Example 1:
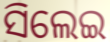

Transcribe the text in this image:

ସିଲେଇ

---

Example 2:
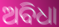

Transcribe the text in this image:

ଅବିଧା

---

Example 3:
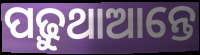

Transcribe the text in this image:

ପଢ଼ୁଥାଆନ୍ତେ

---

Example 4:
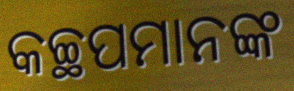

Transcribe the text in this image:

କଚ୍ଛପମାନଙ୍କ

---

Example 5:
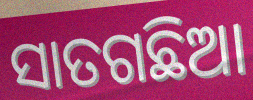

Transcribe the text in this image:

ସାତଗଛିଆ